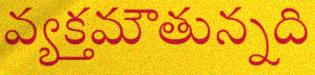
వ్యక్తమౌతున్నది